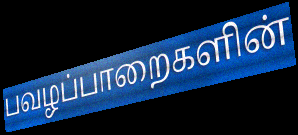
பவழப்பாறைகளின்